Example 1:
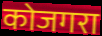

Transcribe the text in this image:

कोजगरा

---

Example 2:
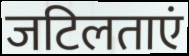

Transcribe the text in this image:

जटिलताएं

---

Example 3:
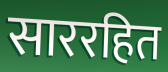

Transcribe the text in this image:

साररहित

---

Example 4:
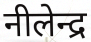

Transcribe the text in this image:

नीलेन्द्र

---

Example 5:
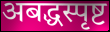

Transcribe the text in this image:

अबद्धस्पृष्ट